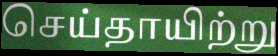
செய்தாயிற்று